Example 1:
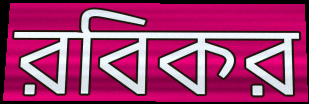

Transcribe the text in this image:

রবিকর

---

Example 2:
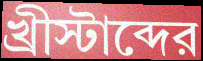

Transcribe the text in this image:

খ্রীস্টাব্দের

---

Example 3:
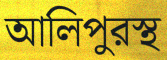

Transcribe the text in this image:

আলিপুরস্থ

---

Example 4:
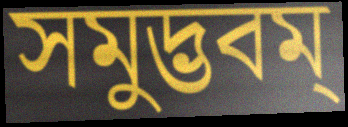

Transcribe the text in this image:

সমুদ্ভবম্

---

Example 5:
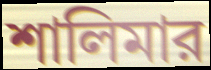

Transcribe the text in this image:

শালিমার